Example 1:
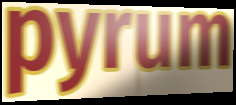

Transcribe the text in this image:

pyrum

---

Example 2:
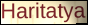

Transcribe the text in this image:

Haritatya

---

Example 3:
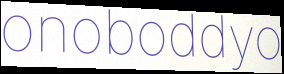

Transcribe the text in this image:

onoboddyo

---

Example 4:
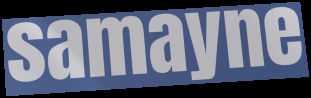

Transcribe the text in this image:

samayne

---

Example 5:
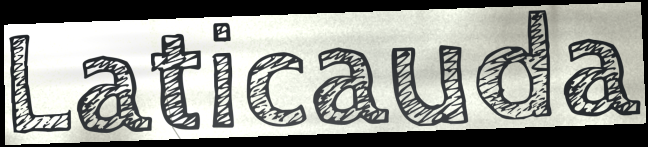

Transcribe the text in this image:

Laticauda